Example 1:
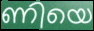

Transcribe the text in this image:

ണിയെ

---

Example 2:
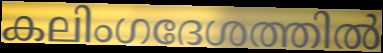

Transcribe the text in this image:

കലിംഗദേശത്തിൽ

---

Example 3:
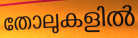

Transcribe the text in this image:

തോലുകളിൽ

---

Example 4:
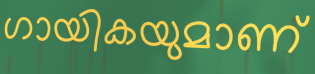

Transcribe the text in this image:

ഗായികയുമാണ്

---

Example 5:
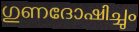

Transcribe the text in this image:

ഗുണദോഷിച്ചും